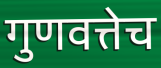
गुणवत्तेच